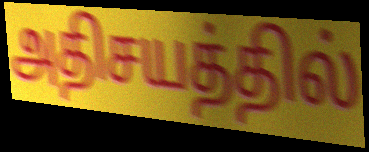
அதிசயத்தில்